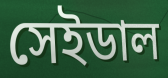
সেইডাল